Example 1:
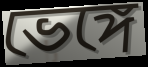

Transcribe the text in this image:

ভেঙ্গে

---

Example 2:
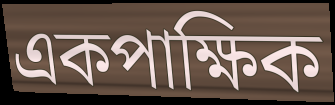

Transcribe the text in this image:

একপাক্ষিক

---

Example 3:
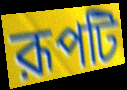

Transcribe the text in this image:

রূপটি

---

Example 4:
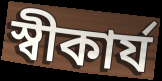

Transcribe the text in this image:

স্বীকার্য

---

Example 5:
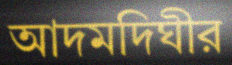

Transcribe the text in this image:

আদমদিঘীর